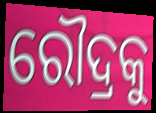
ରୌଦ୍ରକୁ